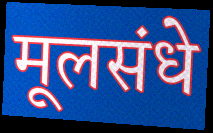
मूलसंधे